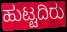
ಹುಟ್ಟದಿರು